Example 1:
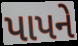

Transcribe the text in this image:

પાપને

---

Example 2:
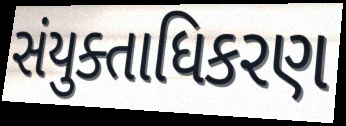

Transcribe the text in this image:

સંયુક્તાધિકરણ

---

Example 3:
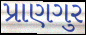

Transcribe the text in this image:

પ્રાણગુર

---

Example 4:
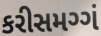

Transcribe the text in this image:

કરીસમગ્ગં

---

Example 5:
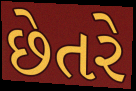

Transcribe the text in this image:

છેતરે